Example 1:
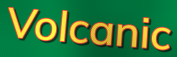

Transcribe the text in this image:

Volcanic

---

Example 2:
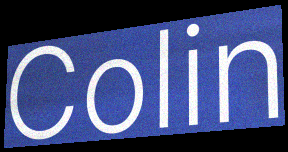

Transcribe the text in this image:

Colin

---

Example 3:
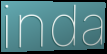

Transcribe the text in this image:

inda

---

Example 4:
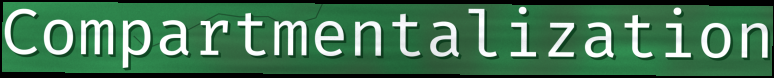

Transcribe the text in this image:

Compartmentalization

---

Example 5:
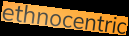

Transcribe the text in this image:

ethnocentric